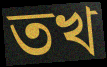
তখ